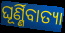
ଘୂର୍ଣ୍ଣିବାତ୍ୟା